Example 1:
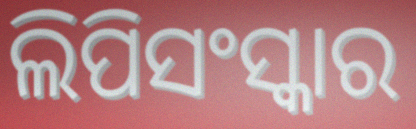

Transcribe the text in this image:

ଲିପିସଂସ୍କାର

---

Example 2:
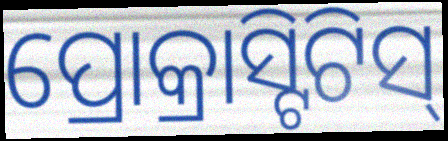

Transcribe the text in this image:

ପ୍ରୋକ୍ରାସ୍ଟିଟିସ୍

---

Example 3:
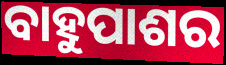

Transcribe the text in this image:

ବାହୁପାଶର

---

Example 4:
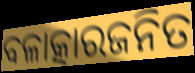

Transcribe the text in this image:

ବଳାତ୍କାରଜନିତ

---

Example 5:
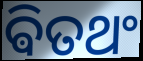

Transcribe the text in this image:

ଵିତଥଂ